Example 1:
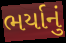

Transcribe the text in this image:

ભર્યાનું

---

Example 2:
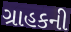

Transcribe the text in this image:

ગ્રાહકની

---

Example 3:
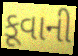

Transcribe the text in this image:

કૂવાની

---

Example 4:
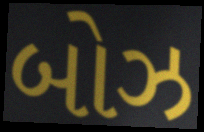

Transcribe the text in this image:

બોઝ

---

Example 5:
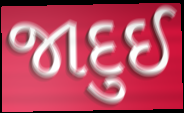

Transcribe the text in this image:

જાદુઈ